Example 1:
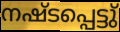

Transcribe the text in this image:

നഷ്ടപ്പെട്ടു്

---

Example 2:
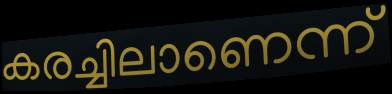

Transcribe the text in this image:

കരച്ചിലാണെന്ന്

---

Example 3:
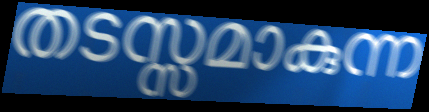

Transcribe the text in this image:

തടസ്സമാകുന്ന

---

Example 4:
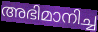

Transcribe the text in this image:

അഭിമാനിച്ച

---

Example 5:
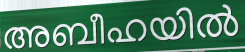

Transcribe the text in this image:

അബീഹയിൽ